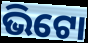
ଭିଟୋ